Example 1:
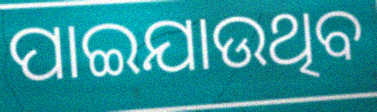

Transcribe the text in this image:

ପାଇଯାଉଥିବ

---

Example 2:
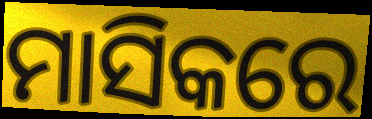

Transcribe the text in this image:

ମାସିକରେ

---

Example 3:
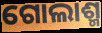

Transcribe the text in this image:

ଗୋଲାଶ୍ମ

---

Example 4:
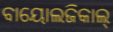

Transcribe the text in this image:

ବାୟୋଲଜିକାଲ୍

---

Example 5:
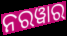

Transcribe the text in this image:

ନରୱାର